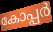
കോപ്പർ